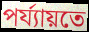
পৰ্য্যায়তে